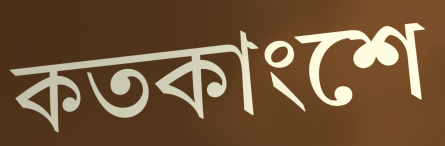
কতকাংশে